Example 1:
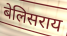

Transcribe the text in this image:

बेलिसराय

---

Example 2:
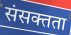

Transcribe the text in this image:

संसक्तता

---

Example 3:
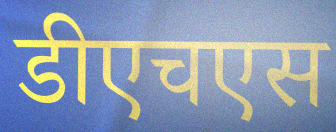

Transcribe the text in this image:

डीएचएस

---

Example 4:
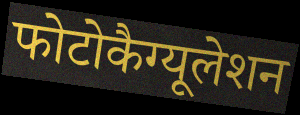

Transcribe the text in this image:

फोटोकैग्यूलेशन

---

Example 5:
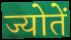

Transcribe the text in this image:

ज्योतें